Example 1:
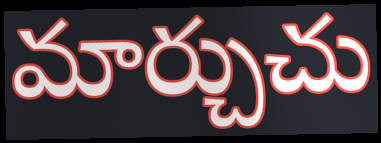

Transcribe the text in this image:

మార్చుచు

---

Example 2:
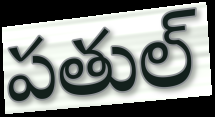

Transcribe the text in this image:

పతుల్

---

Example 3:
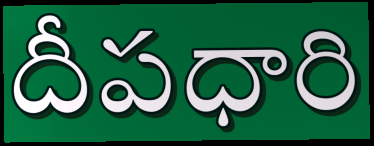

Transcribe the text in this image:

దీపధారి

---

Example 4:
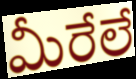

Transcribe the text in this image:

మీరేలే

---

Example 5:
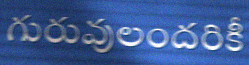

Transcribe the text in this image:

గురువులందరికీ